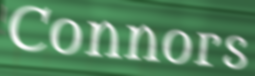
Connors